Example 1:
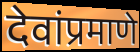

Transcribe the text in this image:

देवांप्रमाणे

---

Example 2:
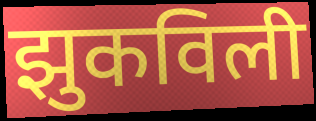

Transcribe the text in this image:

झुकविली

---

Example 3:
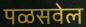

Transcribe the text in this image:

पळसवेल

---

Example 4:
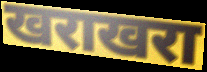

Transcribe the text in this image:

खराखरा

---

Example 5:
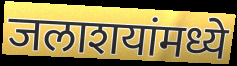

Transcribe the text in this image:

जलाशयांमध्ये